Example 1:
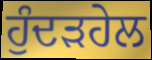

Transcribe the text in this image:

ਹੁੰਦੜਹੇਲ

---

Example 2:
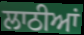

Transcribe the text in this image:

ਲਾਠੀਆਂ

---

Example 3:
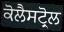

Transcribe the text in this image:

ਕੋਲੈਸਟ੍ਰੋਲ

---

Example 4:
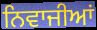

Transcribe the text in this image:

ਨਿਵਾਜੀਆਂ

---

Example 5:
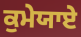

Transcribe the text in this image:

ਕੁਮੇਯਾਏ